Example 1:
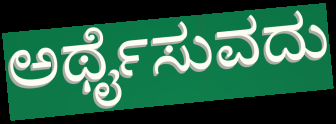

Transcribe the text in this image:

ಅರ್ಥೈಸುವದು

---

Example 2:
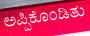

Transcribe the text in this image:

ಅಪ್ಪಿಕೊಂಡಿತು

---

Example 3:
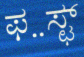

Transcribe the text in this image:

ಫ಼ಸ್ಟ್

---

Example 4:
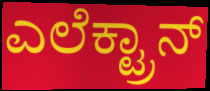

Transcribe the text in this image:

ಎಲೆಕ್ಟ್ರಾನ್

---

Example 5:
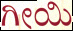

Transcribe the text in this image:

ಗೀಯಿ